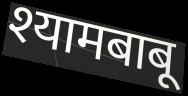
श्यामबाबू